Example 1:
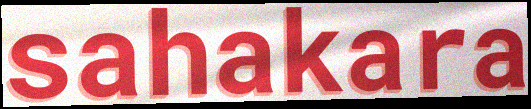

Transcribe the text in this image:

sahakara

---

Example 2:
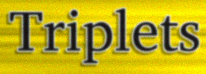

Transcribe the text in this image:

Triplets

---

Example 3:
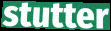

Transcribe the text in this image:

stutter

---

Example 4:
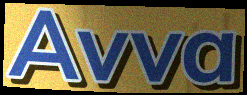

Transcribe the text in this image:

Avva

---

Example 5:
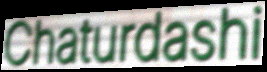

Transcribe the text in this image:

Chaturdashi